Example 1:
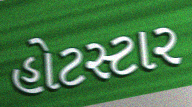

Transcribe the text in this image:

હોટસ્ટાર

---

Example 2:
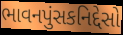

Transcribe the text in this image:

ભાવનપુંસકનિદ્દેસો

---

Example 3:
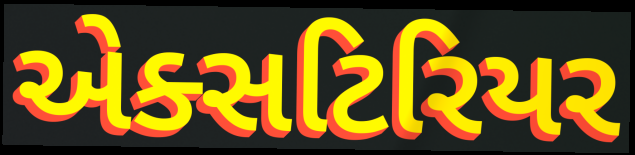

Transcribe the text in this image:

એક્સટિરિયર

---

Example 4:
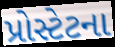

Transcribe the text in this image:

પ્રોસ્ટેટના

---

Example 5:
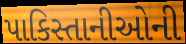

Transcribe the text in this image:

પાકિસ્તાનીઓની